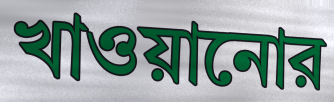
খাওয়ানোর